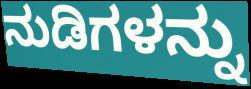
ನುಡಿಗಳನ್ನು